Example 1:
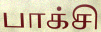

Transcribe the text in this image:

பாக்சி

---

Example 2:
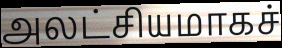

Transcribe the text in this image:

அலட்சியமாகச்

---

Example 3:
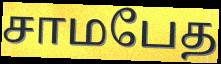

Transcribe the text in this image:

சாமபேத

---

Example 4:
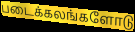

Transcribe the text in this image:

படைக்கலங்களோடு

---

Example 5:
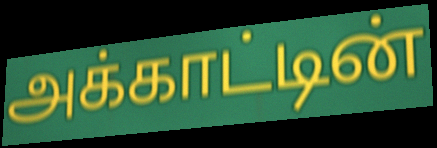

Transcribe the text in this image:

அக்காட்டின்